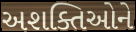
અશક્તિઓને